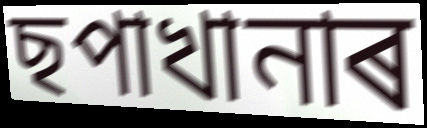
ছপাখানাৰ